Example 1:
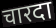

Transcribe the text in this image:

चारदा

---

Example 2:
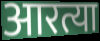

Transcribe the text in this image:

आरत्या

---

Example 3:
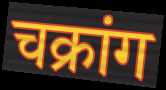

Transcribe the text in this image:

चक्रांग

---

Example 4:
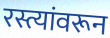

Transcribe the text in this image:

रस्त्यांवरून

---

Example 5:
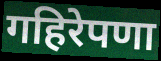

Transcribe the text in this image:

गहिरेपणा